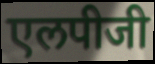
एलपीजी